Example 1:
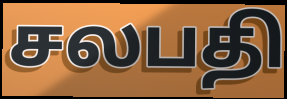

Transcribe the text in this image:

சலபதி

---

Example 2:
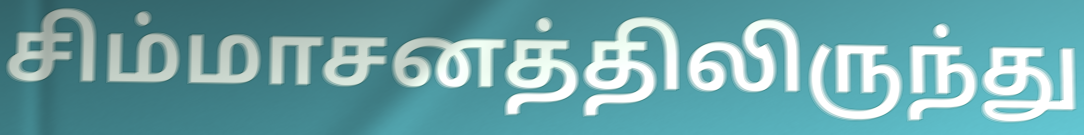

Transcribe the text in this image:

சிம்மாசனத்திலிருந்து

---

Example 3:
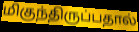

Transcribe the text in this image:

மிகுந்திருப்பதால்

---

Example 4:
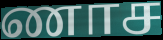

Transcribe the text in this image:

ணாச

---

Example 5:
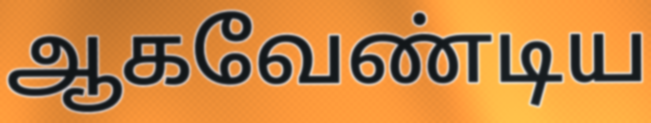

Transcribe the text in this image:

ஆகவேண்டிய